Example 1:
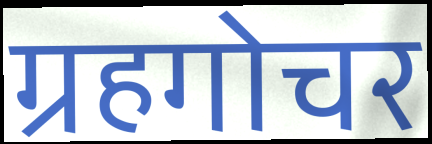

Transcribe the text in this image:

ग्रहगोचर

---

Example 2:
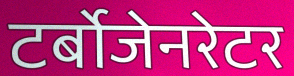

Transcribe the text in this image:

टर्बोजेनरेटर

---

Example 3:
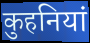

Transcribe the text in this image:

कुहनियां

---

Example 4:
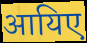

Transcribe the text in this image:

आयिए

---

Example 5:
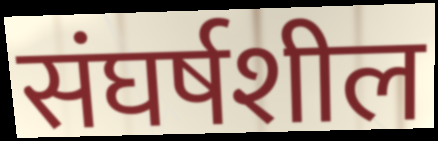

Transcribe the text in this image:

संघर्षशील